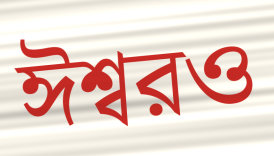
ঈশ্বরও